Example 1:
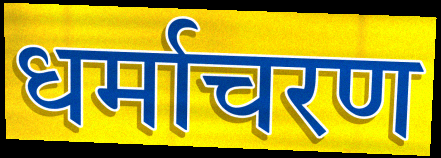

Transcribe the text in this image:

धर्माचरण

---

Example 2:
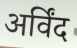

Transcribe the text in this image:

अर्विंद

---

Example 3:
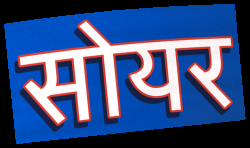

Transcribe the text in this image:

सोयर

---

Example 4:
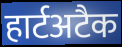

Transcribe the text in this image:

हार्टअटैक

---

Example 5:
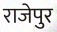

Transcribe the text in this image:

राजेपुर